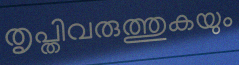
തൃപ്തിവരുത്തുകയും